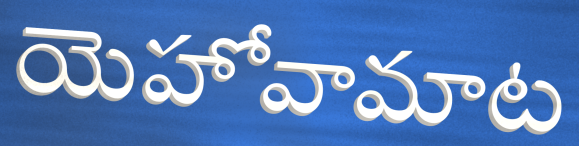
యెహోవామాట